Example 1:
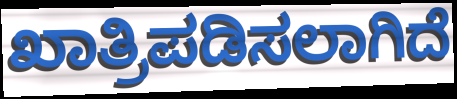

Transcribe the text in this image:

ಖಾತ್ರಿಪಡಿಸಲಾಗಿದೆ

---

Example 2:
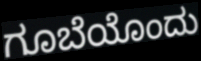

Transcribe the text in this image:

ಗೂಬೆಯೊಂದು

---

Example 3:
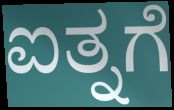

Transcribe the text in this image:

ಐತ್ನಗೆ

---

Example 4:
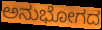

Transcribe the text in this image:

ಅನುಭೋಗದ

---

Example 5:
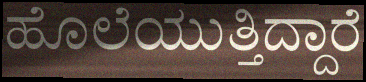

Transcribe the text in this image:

ಹೊಲೆಯುತ್ತಿದ್ದಾರೆ